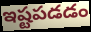
ఇష్టపడడం